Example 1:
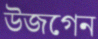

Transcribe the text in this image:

উজগেন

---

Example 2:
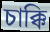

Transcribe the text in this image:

চাক্কি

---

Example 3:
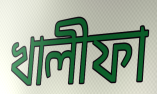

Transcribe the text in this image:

খালীফা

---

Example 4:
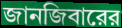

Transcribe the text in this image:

জানজিবারের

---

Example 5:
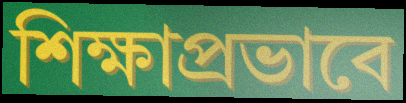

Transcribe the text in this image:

শিক্ষাপ্রভাবে